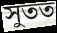
সুতত